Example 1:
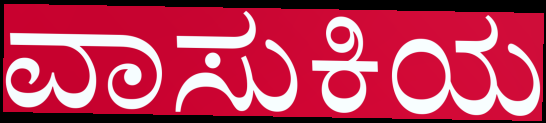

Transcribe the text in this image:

ವಾಸುಕಿಯ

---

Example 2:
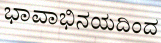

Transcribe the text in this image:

ಭಾವಾಭಿನಯದಿಂದ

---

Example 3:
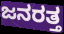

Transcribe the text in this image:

ಜನರತ್ತ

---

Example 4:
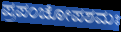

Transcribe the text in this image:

ಪ್ರಪಂಚೋಪಶಮಃ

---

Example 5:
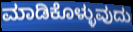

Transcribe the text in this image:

ಮಾಡಿಕೊಳ್ಳುವುದು